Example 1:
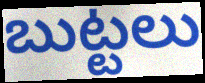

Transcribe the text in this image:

బుట్టలు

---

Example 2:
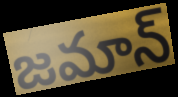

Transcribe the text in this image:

జమాన్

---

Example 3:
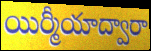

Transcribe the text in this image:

యిర్మీయాద్వారా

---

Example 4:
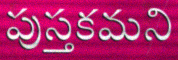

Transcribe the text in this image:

పుస్తకమని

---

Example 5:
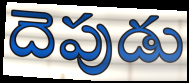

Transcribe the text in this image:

దెపుడు